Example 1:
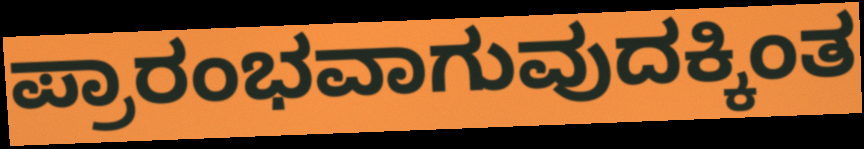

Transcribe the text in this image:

ಪ್ರಾರಂಭವಾಗುವುದಕ್ಕಿಂತ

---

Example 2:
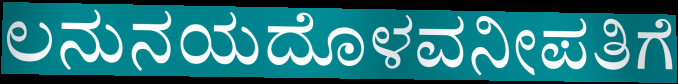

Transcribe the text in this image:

ಲನುನಯದೊಳವನೀಪತಿಗೆ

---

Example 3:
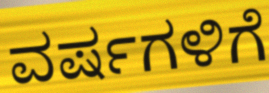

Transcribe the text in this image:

ವರ್ಷಗಳಿಗೆ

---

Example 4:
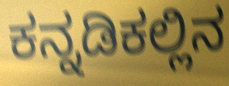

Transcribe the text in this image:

ಕನ್ನಡಿಕಲ್ಲಿನ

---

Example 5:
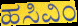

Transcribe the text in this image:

ಹಸಿವಿಂ